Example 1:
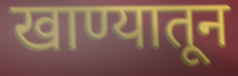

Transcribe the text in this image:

खाण्यातून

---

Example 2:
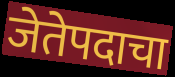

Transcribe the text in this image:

जेतेपदाचा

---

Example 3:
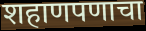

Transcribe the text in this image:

शहाणपणाचा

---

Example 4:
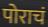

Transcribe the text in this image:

पोराचं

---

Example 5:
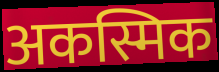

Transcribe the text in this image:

अकस्मिक